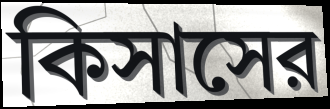
কিসাসের